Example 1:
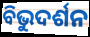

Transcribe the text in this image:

ବିଭୁଦର୍ଶନ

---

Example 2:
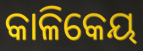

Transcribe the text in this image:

କାଳିକେୟ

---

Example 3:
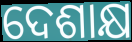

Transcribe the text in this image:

ଦେଶାକ୍ଷ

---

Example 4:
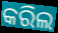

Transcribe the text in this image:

କରିଲ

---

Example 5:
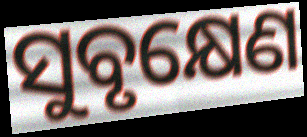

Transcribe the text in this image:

ସୁବୃକ୍ଷେଣ